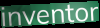
inventor